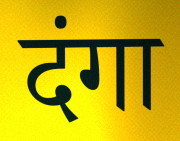
दंगा